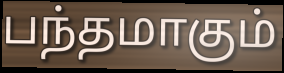
பந்தமாகும்